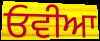
ਓਵੀਆ